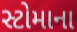
સ્ટોમાના